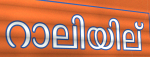
റാലിയില്